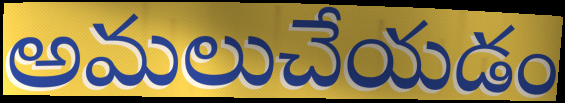
అమలుచేయడం